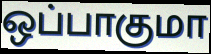
ஒப்பாகுமா